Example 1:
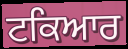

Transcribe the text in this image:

ਟਕਿਆਰ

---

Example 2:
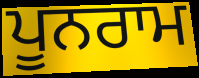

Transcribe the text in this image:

ਪੂਨਰਾਮ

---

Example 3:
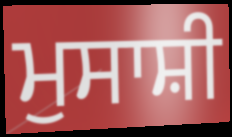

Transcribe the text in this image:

ਮੁਸਾਸ਼ੀ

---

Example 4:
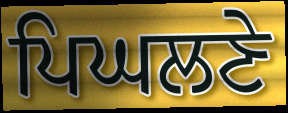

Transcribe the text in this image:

ਪਿਘਲਣੇ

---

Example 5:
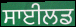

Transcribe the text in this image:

ਸਾਈਲਡ